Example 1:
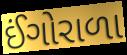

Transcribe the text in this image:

ઈંગોરાળા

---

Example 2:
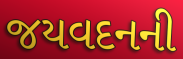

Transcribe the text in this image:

જયવદનની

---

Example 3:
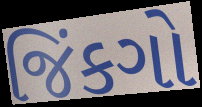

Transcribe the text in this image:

જિંકગો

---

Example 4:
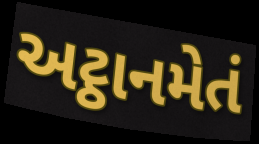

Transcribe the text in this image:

અટ્ઠાનમેતં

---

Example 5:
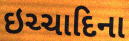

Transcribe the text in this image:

ઇચ્ચાદિના